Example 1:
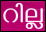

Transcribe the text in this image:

റില്ല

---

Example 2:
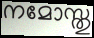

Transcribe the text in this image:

നമോസ്തു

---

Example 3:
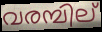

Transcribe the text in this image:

വരമ്പില്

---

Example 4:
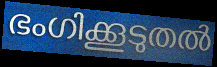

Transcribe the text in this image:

ഭംഗിക്കൂടുതൽ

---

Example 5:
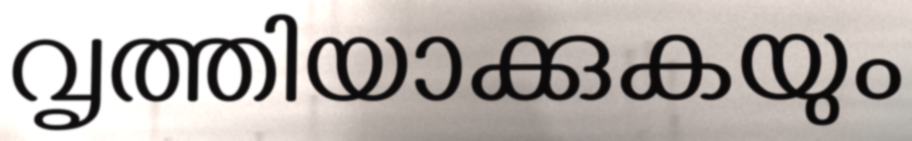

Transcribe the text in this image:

വൃത്തിയാക്കുകയും